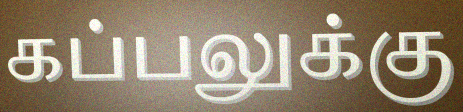
கப்பலுக்கு